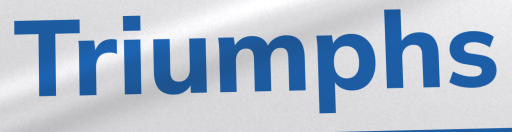
Triumphs